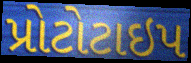
પ્રોટોટાઇપ